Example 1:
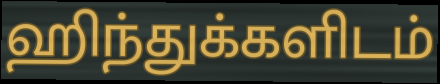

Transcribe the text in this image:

ஹிந்துக்களிடம்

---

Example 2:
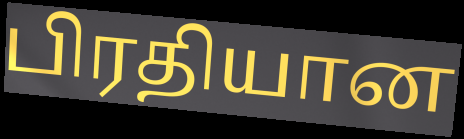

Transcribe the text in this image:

பிரதியான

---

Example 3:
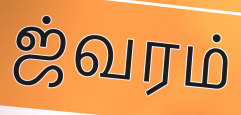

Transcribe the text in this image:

ஜ்வரம்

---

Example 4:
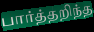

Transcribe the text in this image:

பார்த்தறிந்த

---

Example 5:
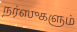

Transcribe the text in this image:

நர்ஸுகளும்